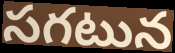
సగటున